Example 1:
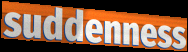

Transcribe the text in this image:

suddenness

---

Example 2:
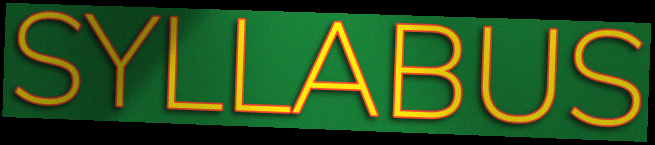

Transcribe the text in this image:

SYLLABUS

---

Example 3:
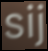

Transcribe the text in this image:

sij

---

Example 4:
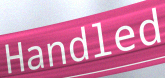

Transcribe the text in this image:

Handled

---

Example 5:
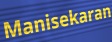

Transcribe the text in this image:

Manisekaran